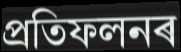
প্ৰতিফলনৰ